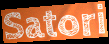
Satori